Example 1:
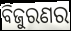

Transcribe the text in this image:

ବିଜୁରଣର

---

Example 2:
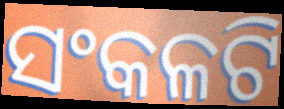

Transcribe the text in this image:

ସଂକଳଟି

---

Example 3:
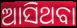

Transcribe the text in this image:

ଆସିଥବା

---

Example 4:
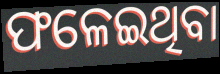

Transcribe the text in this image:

ଫଳେଇଥିବା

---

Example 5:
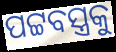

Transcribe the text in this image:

ପଟ୍ଟବସ୍ତ୍ରକୁ